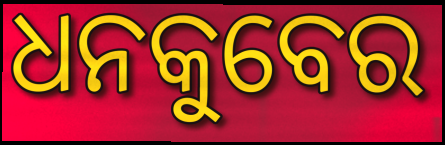
ଧନକୁବେର